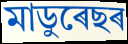
মাডুৰেছৰ